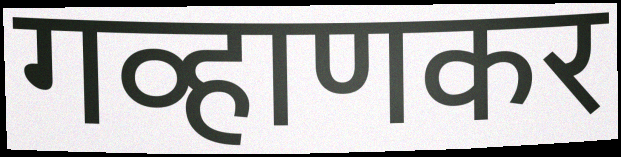
गव्हाणकर